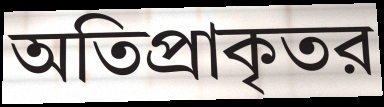
অতিপ্রাকৃতর